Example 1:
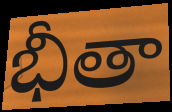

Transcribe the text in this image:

భీతా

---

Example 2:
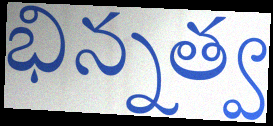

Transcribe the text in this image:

భిన్నత్వ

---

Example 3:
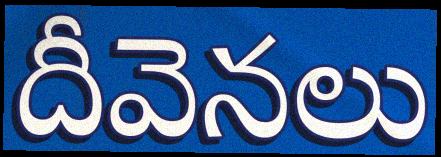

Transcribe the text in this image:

దీవెనలు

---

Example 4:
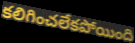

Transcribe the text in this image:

కలిగించలేకపోయింది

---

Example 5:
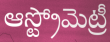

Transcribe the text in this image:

ఆస్ట్రోమెట్రీ